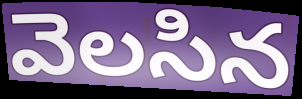
వెలసిన